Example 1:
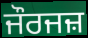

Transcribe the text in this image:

ਜੌਰਜਜ਼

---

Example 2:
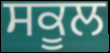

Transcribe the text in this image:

ਸਕੂਲ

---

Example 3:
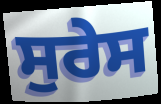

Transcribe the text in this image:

ਸੁਰੇਸ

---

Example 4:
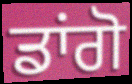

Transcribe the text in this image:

ਡਾਂਗੋ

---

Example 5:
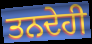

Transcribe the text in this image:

ਤਨਦੇਹੀ